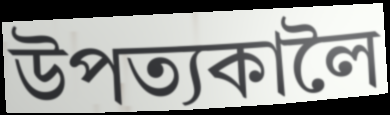
উপত্যকালৈ